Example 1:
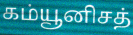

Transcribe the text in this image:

கம்யூனிசத்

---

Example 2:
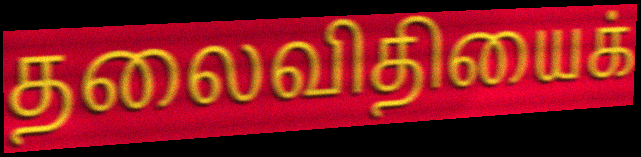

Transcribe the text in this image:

தலைவிதியைக்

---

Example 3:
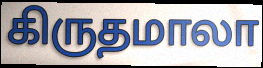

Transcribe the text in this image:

கிருதமாலா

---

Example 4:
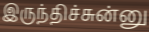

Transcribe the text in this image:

இருந்திச்சுன்னு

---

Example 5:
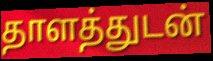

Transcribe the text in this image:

தாளத்துடன்